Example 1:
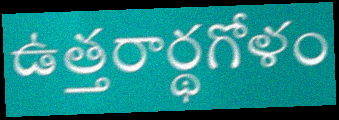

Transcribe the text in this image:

ఉత్తరార్థగోళం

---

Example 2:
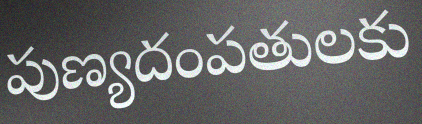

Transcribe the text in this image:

పుణ్యదంపతులకు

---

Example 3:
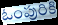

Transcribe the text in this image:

ఓంపురికి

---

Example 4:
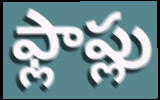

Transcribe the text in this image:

ఫ్లాప్లు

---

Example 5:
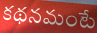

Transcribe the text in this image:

కథనమంటే